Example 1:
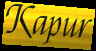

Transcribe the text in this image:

Kapur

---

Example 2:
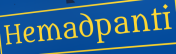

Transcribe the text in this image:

Hemadpanti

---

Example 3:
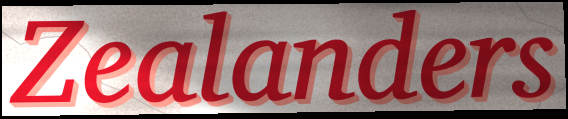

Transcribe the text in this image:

Zealanders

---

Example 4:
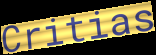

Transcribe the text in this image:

Critias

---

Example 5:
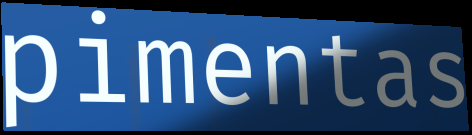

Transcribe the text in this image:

pimentas